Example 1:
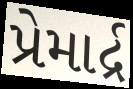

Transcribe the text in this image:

પ્રેમાર્દ્ર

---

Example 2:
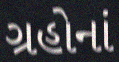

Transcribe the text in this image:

ગ્રહોનાં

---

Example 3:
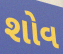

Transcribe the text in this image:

શોવ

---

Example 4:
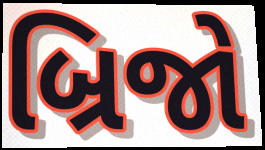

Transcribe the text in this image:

બ્રિજો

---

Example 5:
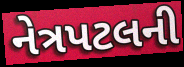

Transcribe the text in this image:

નેત્રપટલની